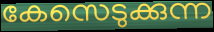
കേസെടുക്കുന്ന